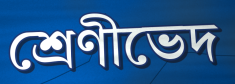
শ্রেণীভেদ